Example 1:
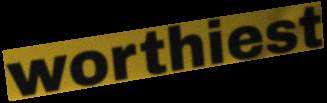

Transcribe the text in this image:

worthiest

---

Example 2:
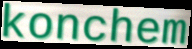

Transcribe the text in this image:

konchem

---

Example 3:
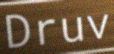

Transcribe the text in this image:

Druv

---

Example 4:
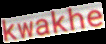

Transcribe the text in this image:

kwakhe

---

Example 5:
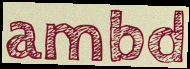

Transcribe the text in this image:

ambd